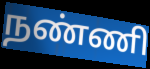
நண்ணி